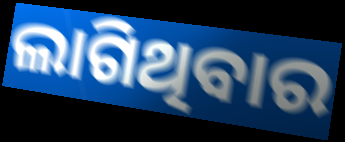
ଲାଗିଥିବାର